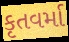
કૃતવર્મા